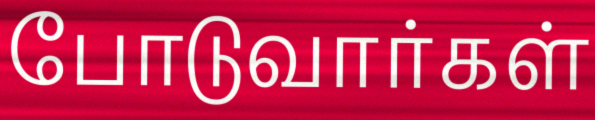
போடுவார்கள்